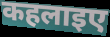
कहलाइए